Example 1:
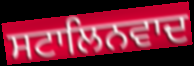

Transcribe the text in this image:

ਸਟਾਲਿਨਵਾਦ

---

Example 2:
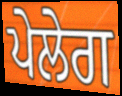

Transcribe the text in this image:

ਪੇਲੇਗ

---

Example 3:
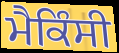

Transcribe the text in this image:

ਮੈਕਿੰਸੀ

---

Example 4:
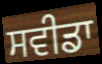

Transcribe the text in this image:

ਸਵੀਡਾ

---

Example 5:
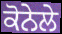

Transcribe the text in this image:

ਕੋਨੇਲੇ